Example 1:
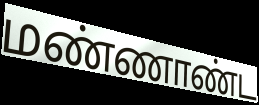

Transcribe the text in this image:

மண்ணாண்ட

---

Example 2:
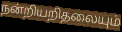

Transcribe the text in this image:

நன்றியறிதலையும்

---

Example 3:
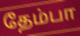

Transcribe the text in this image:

தேம்பா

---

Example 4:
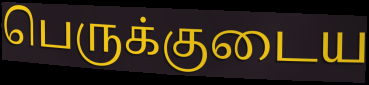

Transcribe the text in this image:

பெருக்குடைய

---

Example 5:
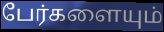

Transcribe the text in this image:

பேர்களையும்